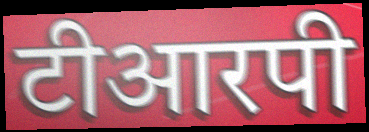
टीआरपी